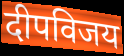
दीपविजय